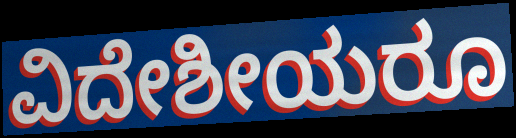
ವಿದೇಶೀಯರೂ